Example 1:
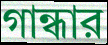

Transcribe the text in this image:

গান্ধার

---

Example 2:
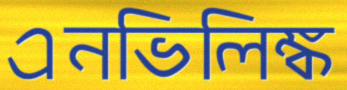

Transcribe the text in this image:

এনভিলিঙ্ক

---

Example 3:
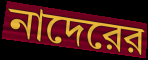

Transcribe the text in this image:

নাদেরের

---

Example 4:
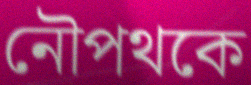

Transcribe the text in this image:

নৌপথকে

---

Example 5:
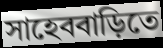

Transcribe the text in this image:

সাহেববাড়িতে